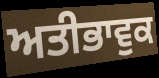
ਅਤੀਭਾਵੁਕ